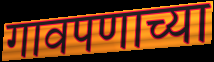
गावपणाच्या